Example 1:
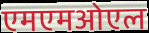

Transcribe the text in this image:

एमएमओएल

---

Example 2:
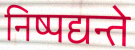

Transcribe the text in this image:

निष्पद्यन्ते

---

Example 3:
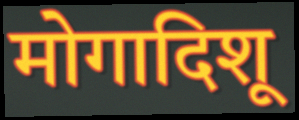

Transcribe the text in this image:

मोगादिशू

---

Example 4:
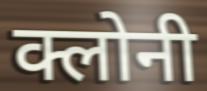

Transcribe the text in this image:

क्लोनी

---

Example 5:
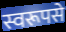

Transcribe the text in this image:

स्वरूपसे